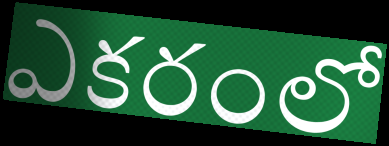
ఎకరంలో